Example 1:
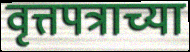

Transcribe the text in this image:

वृत्तपत्राच्या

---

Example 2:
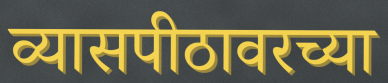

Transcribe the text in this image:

व्यासपीठावरच्या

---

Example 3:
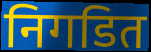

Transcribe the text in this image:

निगडित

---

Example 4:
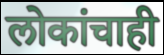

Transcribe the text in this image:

लोकांचाही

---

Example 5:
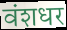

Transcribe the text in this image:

वंशधर